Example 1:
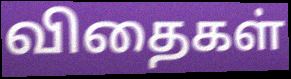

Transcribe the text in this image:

விதைகள்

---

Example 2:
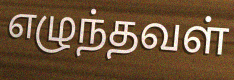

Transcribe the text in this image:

எழுந்தவள்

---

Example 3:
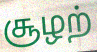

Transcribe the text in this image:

சூழற்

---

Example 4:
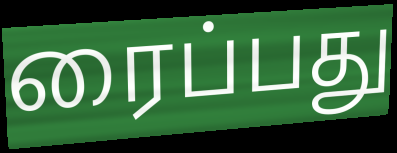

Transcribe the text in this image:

ரைப்பது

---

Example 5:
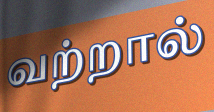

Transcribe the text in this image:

வற்றால்